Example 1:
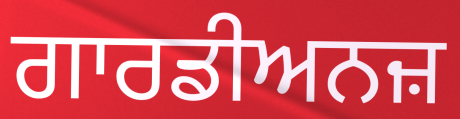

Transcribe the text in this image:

ਗਾਰਡੀਅਨਜ਼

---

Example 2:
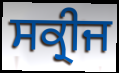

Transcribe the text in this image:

ਸਕ੍ਰੀਜ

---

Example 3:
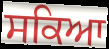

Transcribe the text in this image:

ਸਕਿਆ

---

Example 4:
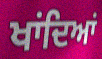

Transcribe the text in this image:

ਖਾਂਦਿਆਂ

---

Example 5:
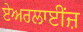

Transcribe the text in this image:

ਏਅਰਲਾਈਂਜ਼